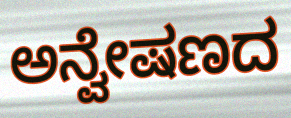
ಅನ್ವೇಷಣದ